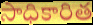
సాధికారిత